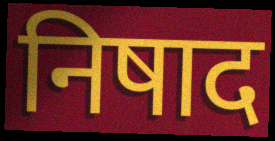
निषाद